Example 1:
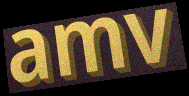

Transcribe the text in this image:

amv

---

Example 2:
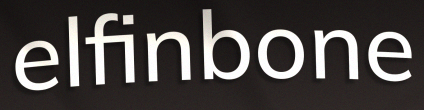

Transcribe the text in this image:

elfinbone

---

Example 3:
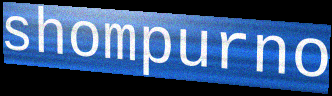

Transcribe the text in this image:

shompurno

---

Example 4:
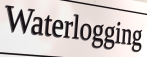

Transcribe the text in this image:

Waterlogging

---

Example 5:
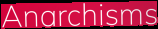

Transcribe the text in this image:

Anarchisms